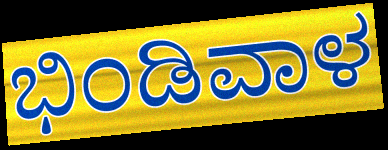
ಭಿಂಡಿವಾಳ